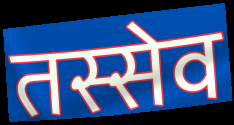
तस्सेव